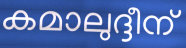
കമാലുദ്ദീന്